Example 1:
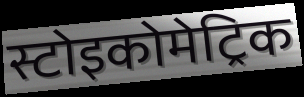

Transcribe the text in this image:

स्टोइकोमेट्रिक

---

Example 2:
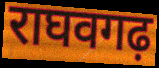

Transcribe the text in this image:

राघवगढ़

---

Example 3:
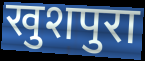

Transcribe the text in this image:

खुशपुरा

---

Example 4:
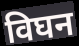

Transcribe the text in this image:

विघन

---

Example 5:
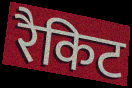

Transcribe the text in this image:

रैकिट